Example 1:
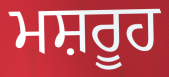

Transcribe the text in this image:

ਮਸ਼ਰੂਹ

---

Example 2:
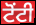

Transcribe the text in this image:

ਟੋਂਟੀ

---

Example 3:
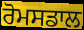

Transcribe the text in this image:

ਰੋਮਸਡਾਲ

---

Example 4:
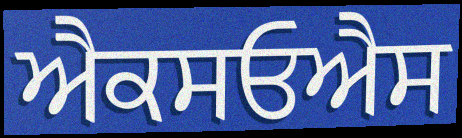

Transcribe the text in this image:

ਐਕਸਓਐਸ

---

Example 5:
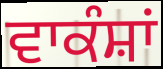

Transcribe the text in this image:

ਵਾਕੰਸ਼ਾਂ